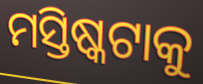
ମସ୍ତିଷ୍କଟାକୁ